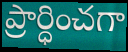
ప్రార్ధించగా